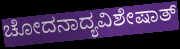
ಚೋದನಾದ್ಯವಿಶೇಷಾತ್